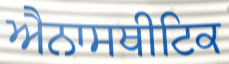
ਐਨਾਸਥੀਟਿਕ